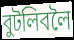
বুটলিবলৈ